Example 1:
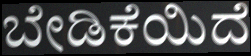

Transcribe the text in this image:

ಬೇಡಿಕೆಯಿದೆ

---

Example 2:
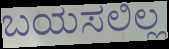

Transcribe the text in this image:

ಬಯಸಲಿಲ್ಲ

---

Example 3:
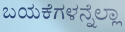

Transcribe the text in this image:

ಬಯಕೆಗಳನ್ನೆಲ್ಲಾ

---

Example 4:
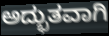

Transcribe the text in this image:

ಅದ್ಭುತವಾಗಿ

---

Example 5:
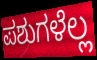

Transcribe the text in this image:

ಪಶುಗಳೆಲ್ಲ